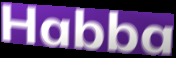
Habba